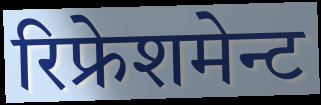
रिफ्रेशमेन्ट